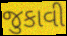
જુકાવી